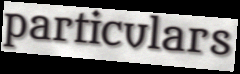
particulars